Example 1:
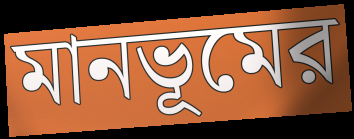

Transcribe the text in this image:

মানভূমের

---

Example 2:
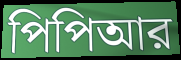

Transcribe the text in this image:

পিপিআর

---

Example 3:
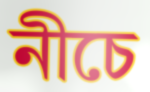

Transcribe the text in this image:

নীচে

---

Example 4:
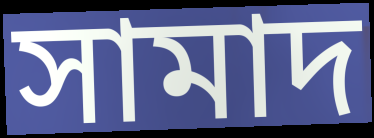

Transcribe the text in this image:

সামাদ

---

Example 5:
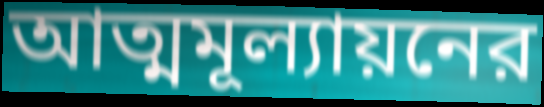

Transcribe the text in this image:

আত্মমূল্যায়নের